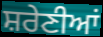
ਸ਼ਰੇਣੀਆਂ